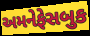
અમનેફેસબુક